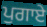
ਪੁਗਾਏ